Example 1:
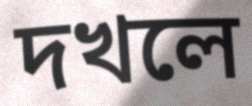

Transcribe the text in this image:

দখলে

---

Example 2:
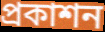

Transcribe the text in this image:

প্ৰকাশন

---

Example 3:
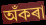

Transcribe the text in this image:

অঁকৰা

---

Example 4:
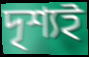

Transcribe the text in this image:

দৃশ্যই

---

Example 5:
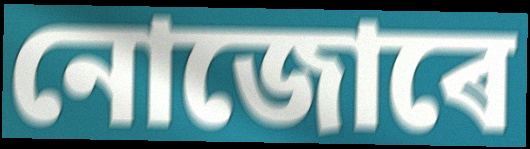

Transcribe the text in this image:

নোজোৰে